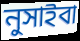
নুসাইবা